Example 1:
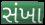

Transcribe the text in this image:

સંખા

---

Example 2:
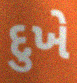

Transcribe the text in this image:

દુખે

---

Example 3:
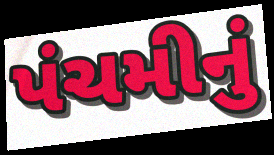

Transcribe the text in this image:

પંચમીનું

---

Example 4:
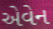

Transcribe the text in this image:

એવેન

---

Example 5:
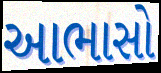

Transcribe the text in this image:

આભાસો